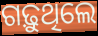
ଗଢ଼ୁଥିଲେ